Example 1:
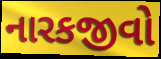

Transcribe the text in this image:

નારકજીવો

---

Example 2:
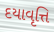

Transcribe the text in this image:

દયાવૃત્તિ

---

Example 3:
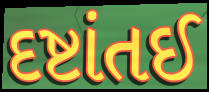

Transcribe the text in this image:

દષ્ટાંતઈ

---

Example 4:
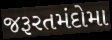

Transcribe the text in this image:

જરૂરતમંદોમા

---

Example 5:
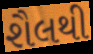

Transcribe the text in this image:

શૈલથી